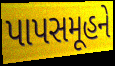
પાપસમૂહને